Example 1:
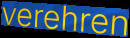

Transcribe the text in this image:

verehren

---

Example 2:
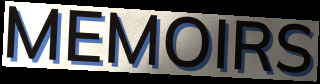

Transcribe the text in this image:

MEMOIRS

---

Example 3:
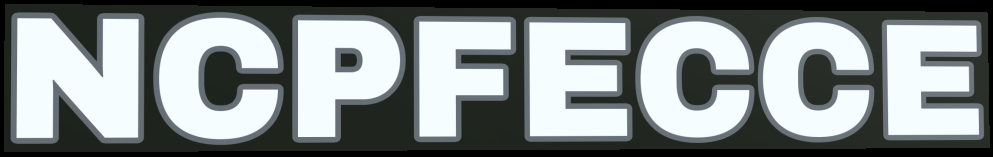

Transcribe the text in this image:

NCPFECCE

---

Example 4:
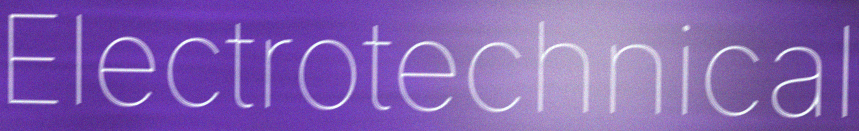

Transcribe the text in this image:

Electrotechnical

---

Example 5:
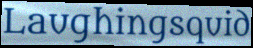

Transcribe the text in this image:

Laughingsquid